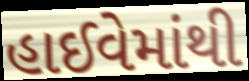
હાઈવેમાંથી